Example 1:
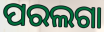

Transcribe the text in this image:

ପରଲଗା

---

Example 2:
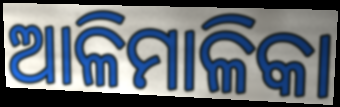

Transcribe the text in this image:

ଆଳିମାଳିକା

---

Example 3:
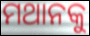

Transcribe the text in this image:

ମଥାନକୁ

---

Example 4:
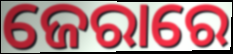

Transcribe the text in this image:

ଜେରାରେ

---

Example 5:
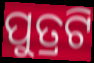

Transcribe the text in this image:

ପୁତ୍ରଟି